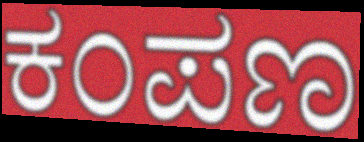
ಕಂಪಣ